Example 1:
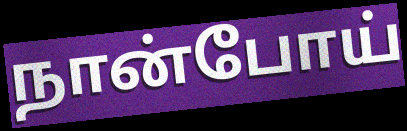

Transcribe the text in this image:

நான்போய்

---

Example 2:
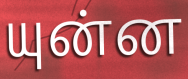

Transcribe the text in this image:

யுன்ன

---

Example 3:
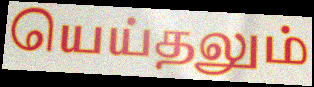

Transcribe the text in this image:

யெய்தலும்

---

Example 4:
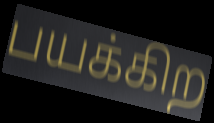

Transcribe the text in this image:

பயக்கிற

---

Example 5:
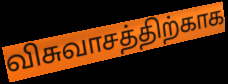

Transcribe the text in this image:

விசுவாசத்திற்காக